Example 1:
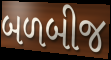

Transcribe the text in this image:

બળબીજ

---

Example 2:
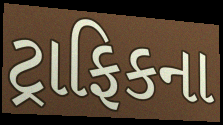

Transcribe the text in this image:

ટ્રાફિકના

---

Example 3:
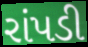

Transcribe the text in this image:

રાંપડી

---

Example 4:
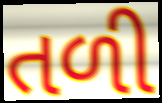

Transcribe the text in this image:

તળી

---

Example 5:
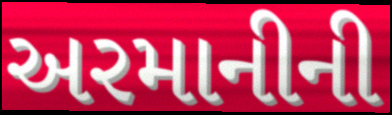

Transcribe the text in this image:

અરમાનીની